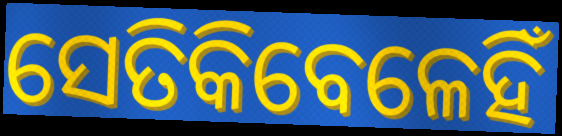
ସେତିକିବେଳେହିଁ